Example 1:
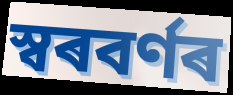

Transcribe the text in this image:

স্বৰবৰ্ণৰ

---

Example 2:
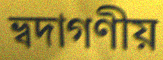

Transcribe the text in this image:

ভ্বদাগণীয়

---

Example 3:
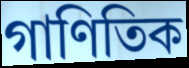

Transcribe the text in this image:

গাণিতিক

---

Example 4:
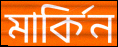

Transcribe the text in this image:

মাৰ্কিন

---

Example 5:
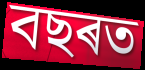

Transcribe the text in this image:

বছৰত